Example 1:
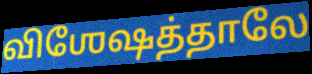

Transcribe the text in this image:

விஶேஷத்தாலே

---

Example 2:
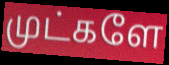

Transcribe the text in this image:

முட்களே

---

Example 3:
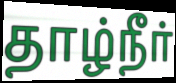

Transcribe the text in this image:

தாழ்நீர்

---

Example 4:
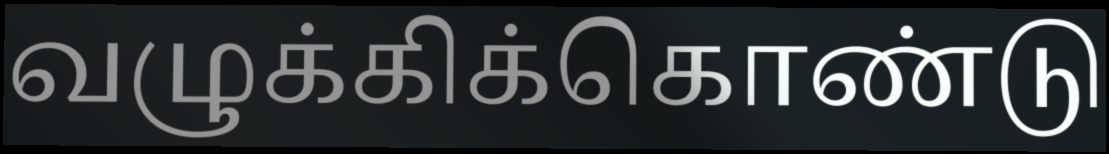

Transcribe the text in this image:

வழுக்கிக்கொண்டு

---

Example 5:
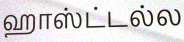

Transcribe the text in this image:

ஹாஸ்ட்டல்ல